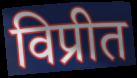
विप्रीत